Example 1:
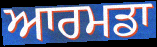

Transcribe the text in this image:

ਆਰਮਡਾ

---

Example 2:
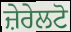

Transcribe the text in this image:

ਜ਼ੇਰੇਲਟੋ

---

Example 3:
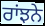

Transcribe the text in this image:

ਰਾਂਝਨੇ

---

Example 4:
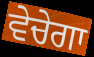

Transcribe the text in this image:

ਵੇਚੇਗਾ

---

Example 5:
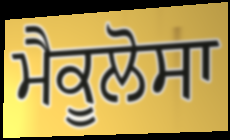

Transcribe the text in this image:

ਮੈਕੂਲੋਸਾ